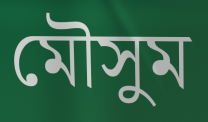
মৌসুম